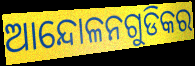
ଆନ୍ଦୋଳନଗୁଡିକର